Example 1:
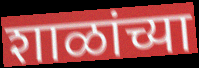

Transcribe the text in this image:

शाळांच्या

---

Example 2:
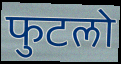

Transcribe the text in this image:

फुटलो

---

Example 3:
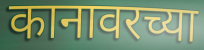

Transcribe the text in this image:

कानावरच्या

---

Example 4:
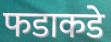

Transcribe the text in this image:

फडाकडे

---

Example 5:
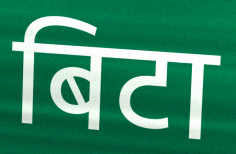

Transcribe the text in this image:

बिटा